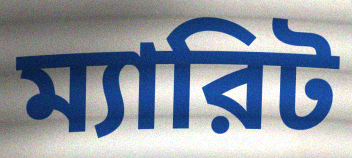
ম্যারিট